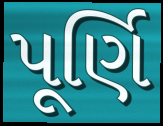
પૂર્ણિ